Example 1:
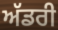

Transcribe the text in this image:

ਅੱਡਰੀ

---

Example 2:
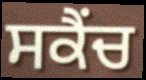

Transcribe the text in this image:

ਸਕੈਂਚ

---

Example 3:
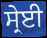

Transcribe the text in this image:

ਸ੍ਰੇਈ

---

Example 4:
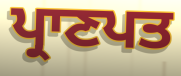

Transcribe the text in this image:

ਪ੍ਰਾਣਪਤ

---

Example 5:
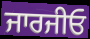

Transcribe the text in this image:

ਜਾਰਜੀਓ